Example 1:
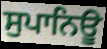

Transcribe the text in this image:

ਸੁਪਾਨਿਊ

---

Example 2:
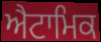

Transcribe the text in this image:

ਐਟਾਮਿਕ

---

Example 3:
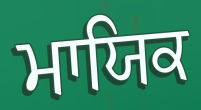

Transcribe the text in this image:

ਮਾਯਿਕ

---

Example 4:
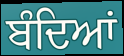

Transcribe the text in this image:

ਬੰਦਿਆਂ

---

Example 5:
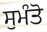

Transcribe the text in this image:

ਸੁਮੰਤੋ